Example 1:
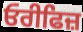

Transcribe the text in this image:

ਓਰੀਫਿਜ਼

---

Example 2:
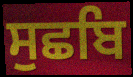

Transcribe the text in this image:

ਸੁਛਬਿ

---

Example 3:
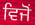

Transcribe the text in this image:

ਵਿਜੋਂ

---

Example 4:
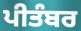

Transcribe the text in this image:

ਪੀਤੰਬਰ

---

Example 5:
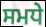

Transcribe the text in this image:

ਸਮਧੇ